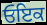
ਓਇਕ